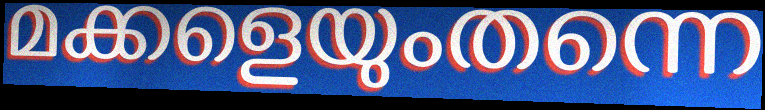
മക്കളെയുംതന്നെ